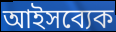
আইসব্যেক